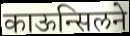
काऊन्सिलने